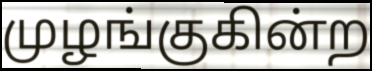
முழங்குகின்ற